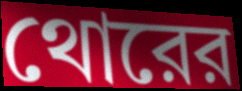
থোরের